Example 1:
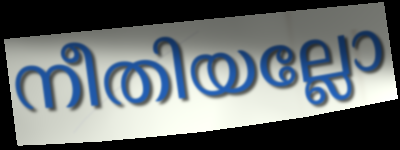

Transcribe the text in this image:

നീതിയല്ലോ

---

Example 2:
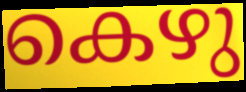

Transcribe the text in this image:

കെഴു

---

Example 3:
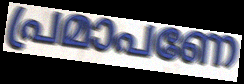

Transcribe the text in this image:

പ്രമാപണേ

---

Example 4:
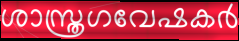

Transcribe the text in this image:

ശാസ്ത്രഗവേഷകർ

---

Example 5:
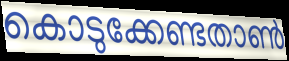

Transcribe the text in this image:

കൊടുക്കേണ്ടതാൺ